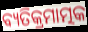
ବ୍ୟତିକ୍ରମାତ୍ମକ